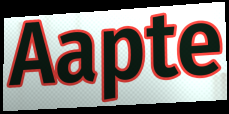
Aapte